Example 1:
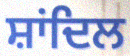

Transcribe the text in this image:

ਸ਼ਾਂਦਿਲ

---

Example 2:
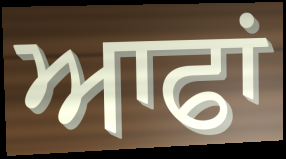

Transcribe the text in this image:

ਆਫਾਂ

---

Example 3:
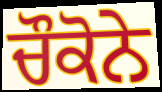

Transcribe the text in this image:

ਚੌਕੋਨੇ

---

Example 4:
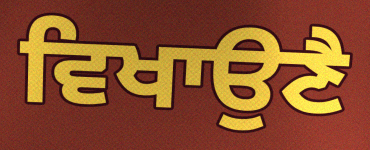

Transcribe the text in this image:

ਵਿਖਾਉਣੈ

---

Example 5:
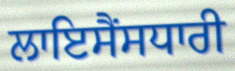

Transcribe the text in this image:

ਲਾਇਸੈਂਸਧਾਰੀ